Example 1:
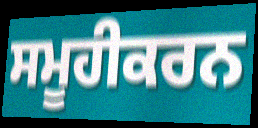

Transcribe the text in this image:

ਸਮੂਹੀਕਰਨ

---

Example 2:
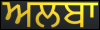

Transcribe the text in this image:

ਅਲਬਾ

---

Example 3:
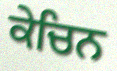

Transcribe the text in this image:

ਕੇਚਿਨ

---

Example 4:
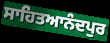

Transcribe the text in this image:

ਸਾਹਿਤਆਨੰਦਪੁਰ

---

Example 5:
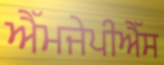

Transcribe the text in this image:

ਐੱਮਜੇਪੀਐੱਸ